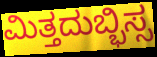
ಮಿತ್ತದುಬ್ಭಿಸ್ಸ